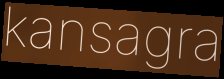
kansagra